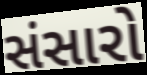
સંસારો